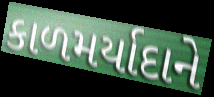
કાળમર્યાદાને